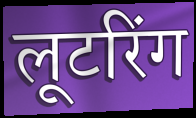
लूटरिंग